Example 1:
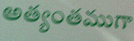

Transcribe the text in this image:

అత్యంతముగా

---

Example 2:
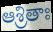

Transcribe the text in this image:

ఆశ్రితాః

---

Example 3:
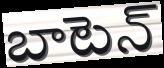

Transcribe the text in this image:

బాటెన్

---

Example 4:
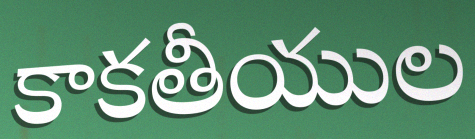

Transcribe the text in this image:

కాకతీయుల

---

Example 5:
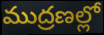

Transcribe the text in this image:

ముద్రణల్లో